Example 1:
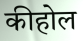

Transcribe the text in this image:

कीहोल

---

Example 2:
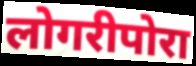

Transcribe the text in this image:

लोगरीपोरा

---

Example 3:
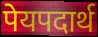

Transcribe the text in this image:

पेयपदार्थ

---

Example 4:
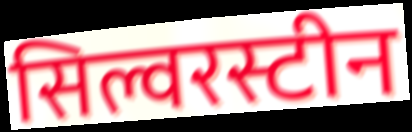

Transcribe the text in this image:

सिल्वरस्टीन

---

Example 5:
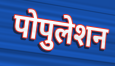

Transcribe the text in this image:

पोपुलेशन